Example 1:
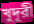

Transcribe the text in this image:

খুদূরী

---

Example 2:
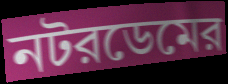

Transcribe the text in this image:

নটরডেমের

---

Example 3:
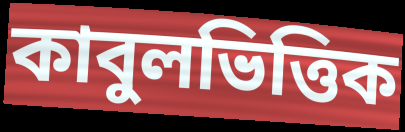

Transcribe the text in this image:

কাবুলভিত্তিক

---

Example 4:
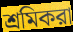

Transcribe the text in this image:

শ্রমিকরা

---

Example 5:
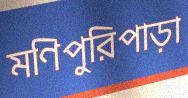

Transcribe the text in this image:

মণিপুরিপাড়া